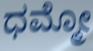
ಧಮ್ಮೋ